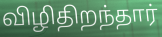
விழிதிறந்தார்